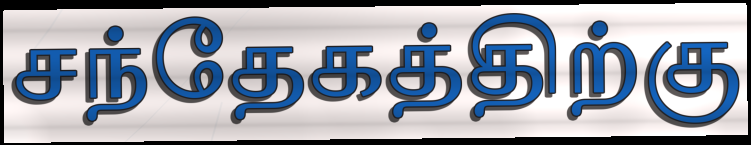
சந்தேகத்திற்கு